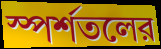
স্পর্শতলের